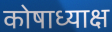
कोषाध्याक्ष